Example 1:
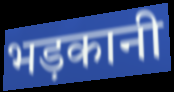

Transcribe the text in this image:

भड़कानी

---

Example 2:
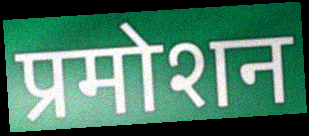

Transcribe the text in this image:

प्रमोशन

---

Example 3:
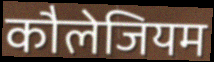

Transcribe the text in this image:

कौलेजियम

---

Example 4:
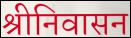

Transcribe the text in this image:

श्रीनिवासन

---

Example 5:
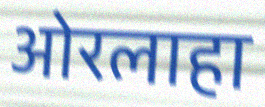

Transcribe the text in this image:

ओरलाहा